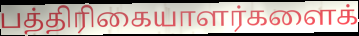
பத்திரிகையாளர்களைக்